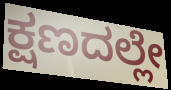
ಕ್ಷಣದಲ್ಲೇ